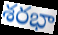
శరభా